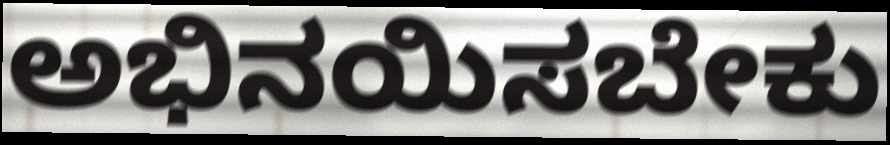
ಅಭಿನಯಿಸಬೇಕು